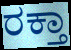
ರಕ್ತಾ